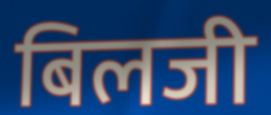
बिलजी